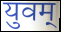
युवम्